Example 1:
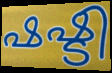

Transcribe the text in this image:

ഷഷ്ടി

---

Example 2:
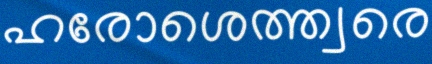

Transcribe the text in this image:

ഹരോശെത്ത്വരെ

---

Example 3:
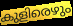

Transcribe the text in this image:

കുളിരെഴും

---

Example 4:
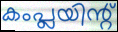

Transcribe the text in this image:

കംപ്ലയിന്റ്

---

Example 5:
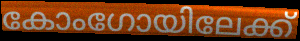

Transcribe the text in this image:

കോംഗോയിലേക്ക്